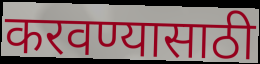
करवण्यासाठी